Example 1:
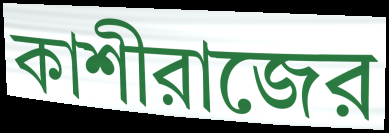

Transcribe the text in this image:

কাশীরাজের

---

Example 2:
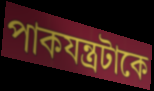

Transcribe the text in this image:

পাকযন্ত্রটাকে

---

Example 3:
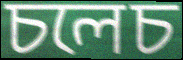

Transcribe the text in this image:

চলেচ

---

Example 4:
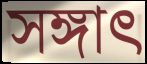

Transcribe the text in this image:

সঙ্গাৎ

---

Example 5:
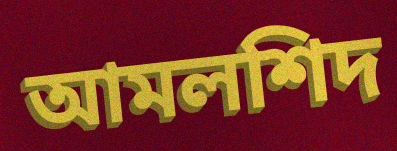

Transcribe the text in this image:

আমলশিদ